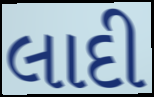
લાદી